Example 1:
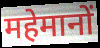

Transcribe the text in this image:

महेमानों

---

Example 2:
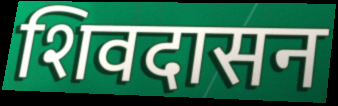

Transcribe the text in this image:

शिवदासन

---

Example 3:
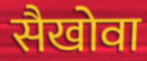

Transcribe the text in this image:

सैखोवा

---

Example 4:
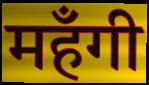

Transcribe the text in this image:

महँगी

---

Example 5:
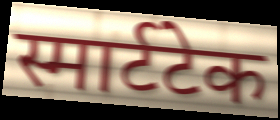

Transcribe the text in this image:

स्मार्टटेक